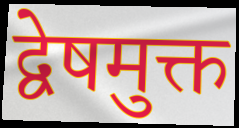
द्वेषमुक्त